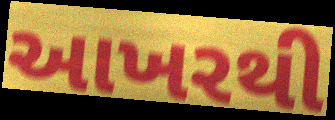
આખરથી